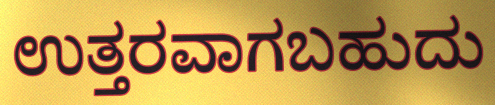
ಉತ್ತರವಾಗಬಹುದು